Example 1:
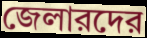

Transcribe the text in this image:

জেলারদের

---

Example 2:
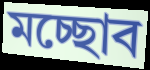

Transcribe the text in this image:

মচ্ছোব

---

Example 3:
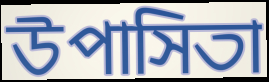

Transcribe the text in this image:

উপাসিতা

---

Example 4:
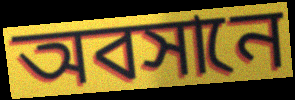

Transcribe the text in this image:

অবসানে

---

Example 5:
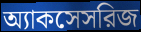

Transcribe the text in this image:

অ্যাকসেসরিজ